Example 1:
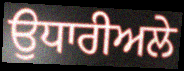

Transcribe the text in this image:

ਉਧਾਰੀਅਲੇ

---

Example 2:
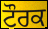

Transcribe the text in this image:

ਟੌਰਕ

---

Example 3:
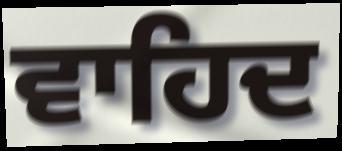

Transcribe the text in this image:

ਵਾਹਿਦ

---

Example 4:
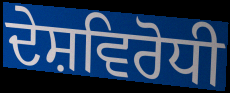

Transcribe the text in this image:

ਦੇਸ਼ਵਿਰੋਧੀ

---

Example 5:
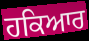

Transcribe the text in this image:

ਹਕਿਆਰ